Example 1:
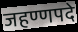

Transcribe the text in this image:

जहण्णपदे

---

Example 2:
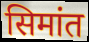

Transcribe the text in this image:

सिमांत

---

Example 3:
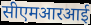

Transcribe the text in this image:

सीएमआरआई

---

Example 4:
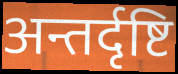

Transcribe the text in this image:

अन्तर्दृष्टि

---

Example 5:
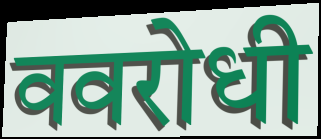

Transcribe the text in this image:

ववरोधी